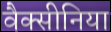
वैक्सीनिया